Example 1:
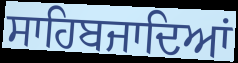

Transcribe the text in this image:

ਸਾਹਿਬਜਾਦਿਆਂ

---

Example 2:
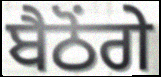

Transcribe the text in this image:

ਬੈਠੋਂਗੇ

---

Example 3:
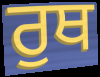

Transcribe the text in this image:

ਰੁਥ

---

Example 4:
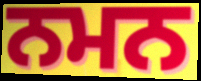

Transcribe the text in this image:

ਨਮਨ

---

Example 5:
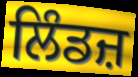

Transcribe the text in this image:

ਲਿੰਡਜ਼